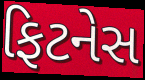
ફિટનેસ